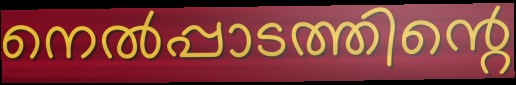
നെൽപ്പാടത്തിന്റെ